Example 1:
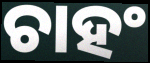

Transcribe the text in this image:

ଚାହଂ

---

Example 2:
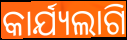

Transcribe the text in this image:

କାର୍ଯ୍ୟଲାଗି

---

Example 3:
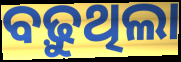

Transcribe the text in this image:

ବଢ଼ୁଥିଲା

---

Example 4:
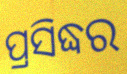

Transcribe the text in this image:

ପ୍ରସିଦ୍ଧର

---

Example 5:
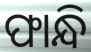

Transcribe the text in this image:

ଫାନ୍ଧି